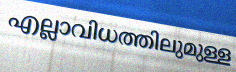
എല്ലാവിധത്തിലുമുള്ള